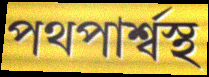
পথপার্শ্বস্থ